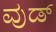
ವುಡ್